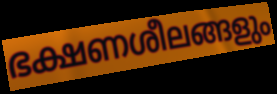
ഭക്ഷണശീലങ്ങളും